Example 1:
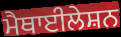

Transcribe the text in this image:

ਮੈਥਾਈਲੇਸ਼ਨ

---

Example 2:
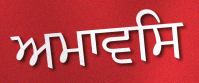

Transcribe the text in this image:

ਅਮਾਵਸਿ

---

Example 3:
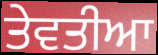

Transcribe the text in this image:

ਤੇਵਤੀਆ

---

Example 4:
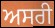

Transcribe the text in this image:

ਅਸਰੀ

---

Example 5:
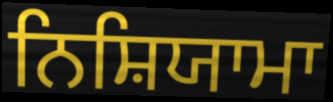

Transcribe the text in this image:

ਨਿਸ਼ਿਯਾਮਾ